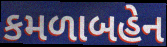
કમળાબહેન